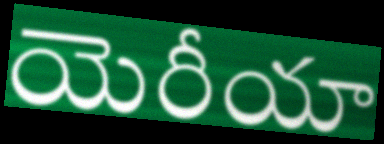
యెరీయా